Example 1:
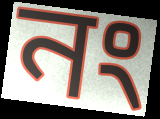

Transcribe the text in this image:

নং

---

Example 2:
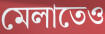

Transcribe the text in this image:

মেলাতেও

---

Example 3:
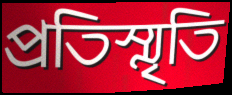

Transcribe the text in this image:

প্রতিস্মৃতি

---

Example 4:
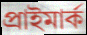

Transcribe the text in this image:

প্রাইমার্ক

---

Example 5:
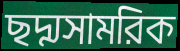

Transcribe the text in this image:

ছদ্মসামরিক